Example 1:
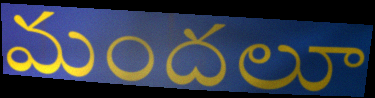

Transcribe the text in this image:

మందలూ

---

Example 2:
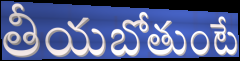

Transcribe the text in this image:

తీయబోతుంటే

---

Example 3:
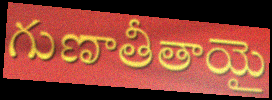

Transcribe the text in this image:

గుణాతీతాయై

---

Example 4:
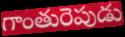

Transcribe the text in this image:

గాంతురెపుడు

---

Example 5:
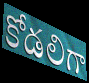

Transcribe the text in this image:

కోడలిగా